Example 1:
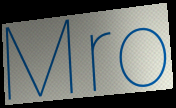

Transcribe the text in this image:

Mro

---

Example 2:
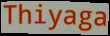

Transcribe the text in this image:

Thiyaga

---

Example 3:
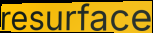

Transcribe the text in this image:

resurface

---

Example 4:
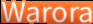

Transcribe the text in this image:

Warora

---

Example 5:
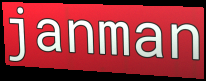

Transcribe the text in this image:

janman